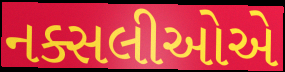
નક્સલીઓએ